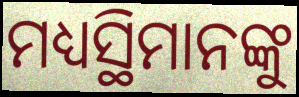
ମଧ୍ୟସ୍ଥିମାନଙ୍କୁ